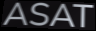
ASAT